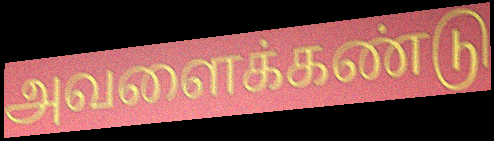
அவளைக்கண்டு